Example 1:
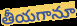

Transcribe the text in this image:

తీయగానూ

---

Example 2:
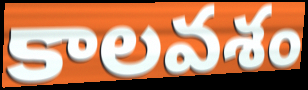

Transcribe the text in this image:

కాలవశం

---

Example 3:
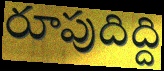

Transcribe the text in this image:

రూపుదిద్ది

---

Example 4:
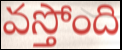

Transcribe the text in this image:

వస్తోంది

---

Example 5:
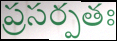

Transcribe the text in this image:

ప్రసర్పతః